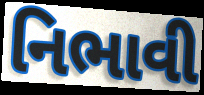
નિભાવી